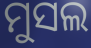
ମୁସଲ